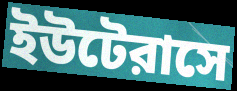
ইউটেরাসে